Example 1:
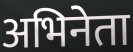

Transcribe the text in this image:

अभिनेता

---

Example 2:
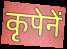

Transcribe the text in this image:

कृपेनें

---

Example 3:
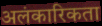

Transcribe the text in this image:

अलंकारिकता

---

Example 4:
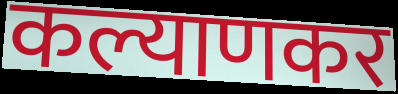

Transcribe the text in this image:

कल्याणकर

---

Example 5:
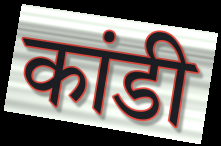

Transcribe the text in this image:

कांडी